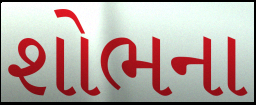
શોભના